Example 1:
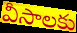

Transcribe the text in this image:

వీసాలకు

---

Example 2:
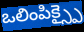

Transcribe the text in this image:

ఒలింపిక్స్పై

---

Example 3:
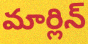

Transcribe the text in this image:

మార్లిన్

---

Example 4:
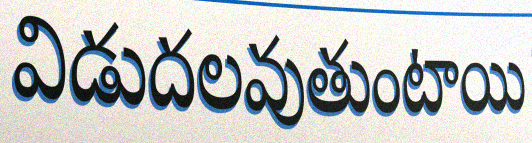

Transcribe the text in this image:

విడుదలవుతుంటాయి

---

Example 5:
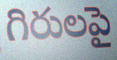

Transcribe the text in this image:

గిరులపై